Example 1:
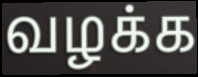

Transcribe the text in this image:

வழக்க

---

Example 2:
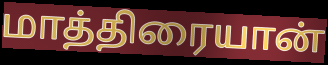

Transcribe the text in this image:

மாத்திரையான்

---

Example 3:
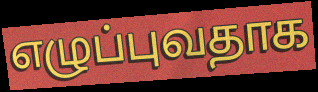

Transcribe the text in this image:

எழுப்புவதாக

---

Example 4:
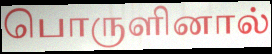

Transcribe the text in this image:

பொருளினால்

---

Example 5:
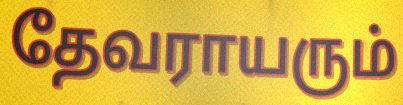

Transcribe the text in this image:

தேவராயரும்